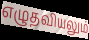
எழுதவியலும்